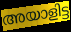
അയാളിട്ട